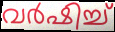
വർഷിച്ച്